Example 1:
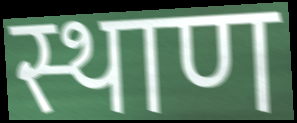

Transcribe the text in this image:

स्थाण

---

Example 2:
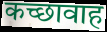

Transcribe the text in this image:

कच्छावाह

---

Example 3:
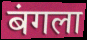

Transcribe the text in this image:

बंगला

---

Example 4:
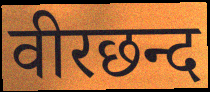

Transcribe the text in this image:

वीरछन्द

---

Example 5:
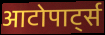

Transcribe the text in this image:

आटोपार्ट्स